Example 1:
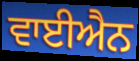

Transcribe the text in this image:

ਵਾਈਐਨ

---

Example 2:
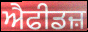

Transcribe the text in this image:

ਐਫੀਡਜ਼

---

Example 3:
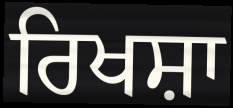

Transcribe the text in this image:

ਰਿਖਸ਼ਾ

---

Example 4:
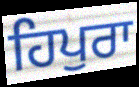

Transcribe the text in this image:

ਹਿਪੁਰਾ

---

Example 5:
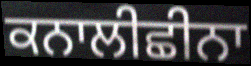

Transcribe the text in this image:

ਕਨਾਲੀਛੀਨਾ